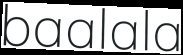
baalala